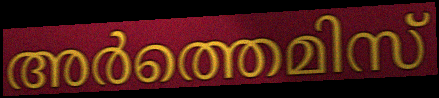
അർത്തെമിസ്